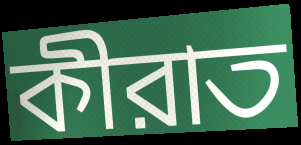
কীরাত